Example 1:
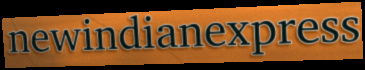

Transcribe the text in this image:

newindianexpress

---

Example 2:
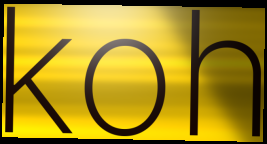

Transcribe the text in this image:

koh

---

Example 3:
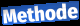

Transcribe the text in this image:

Methode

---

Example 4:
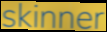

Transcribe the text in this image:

skinner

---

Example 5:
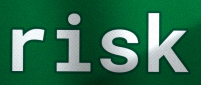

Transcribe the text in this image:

risk